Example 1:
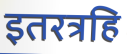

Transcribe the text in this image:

इतरत्रहि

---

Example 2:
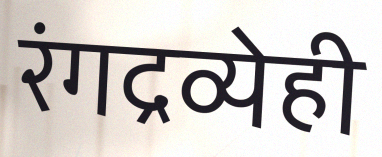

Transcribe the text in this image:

रंगद्रव्येही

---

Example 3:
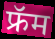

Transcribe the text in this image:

फ्रॅम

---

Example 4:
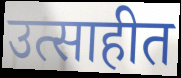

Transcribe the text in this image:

उत्साहीत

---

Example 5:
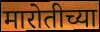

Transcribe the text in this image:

मारोतीच्या